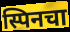
स्पिनचा